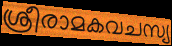
ശ്രീരാമകവചസ്യ